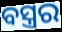
ବସ୍ତ୍ରର